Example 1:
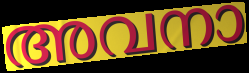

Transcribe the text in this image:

അവനാ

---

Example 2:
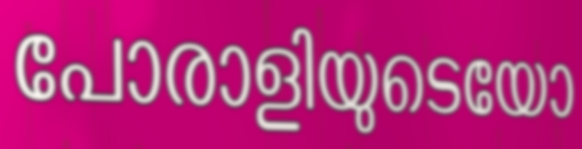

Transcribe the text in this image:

പോരാളിയുടെയോ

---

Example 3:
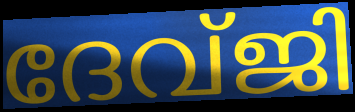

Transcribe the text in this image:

ദേവ്ജി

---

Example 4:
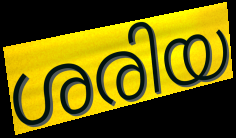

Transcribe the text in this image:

ശരിയ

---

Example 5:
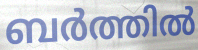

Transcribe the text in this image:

ബർത്തിൽ